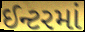
ઈન્ટરમાં